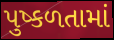
પુષ્કળતામાં